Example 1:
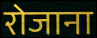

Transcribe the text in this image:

रोजाना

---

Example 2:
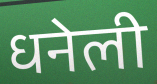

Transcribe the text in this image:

धनेली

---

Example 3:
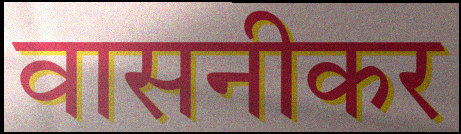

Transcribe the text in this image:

वासनीकर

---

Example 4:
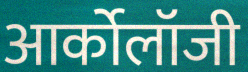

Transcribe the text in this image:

आर्कोलॉजी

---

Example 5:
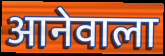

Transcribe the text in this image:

आनेवाला